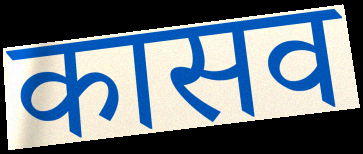
कासव